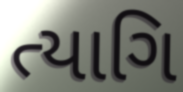
ત્યાગિ